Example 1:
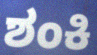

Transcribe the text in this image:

ಶಂಕಿ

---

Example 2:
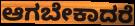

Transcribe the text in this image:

ಆಗಬೇಕಾದರೆ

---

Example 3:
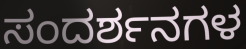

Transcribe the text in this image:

ಸಂದರ್ಶನಗಳ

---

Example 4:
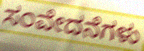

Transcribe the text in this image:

ಸಂವೇದನೆಗಳು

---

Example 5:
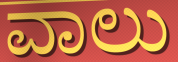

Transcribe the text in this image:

ವಾಲು